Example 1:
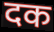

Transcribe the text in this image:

दक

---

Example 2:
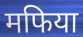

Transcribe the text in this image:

मफिया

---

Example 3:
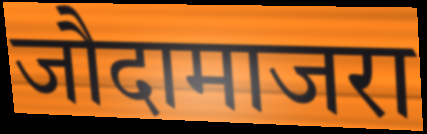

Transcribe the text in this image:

जौदामाजरा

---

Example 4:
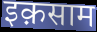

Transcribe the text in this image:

इक़साम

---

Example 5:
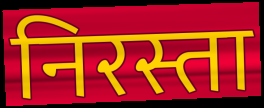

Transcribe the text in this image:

निरस्ता